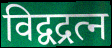
विद्वद्रत्न